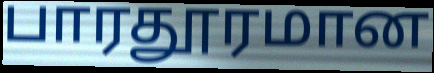
பாரதூரமான